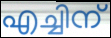
എച്ചിന്